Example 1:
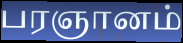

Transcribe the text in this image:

பரஞானம்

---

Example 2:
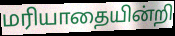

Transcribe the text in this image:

மரியாதையின்றி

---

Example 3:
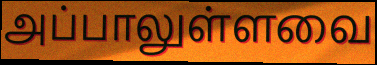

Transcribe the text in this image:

அப்பாலுள்ளவை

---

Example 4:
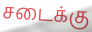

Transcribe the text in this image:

சடைக்கு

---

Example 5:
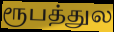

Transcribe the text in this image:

ரூபத்துல